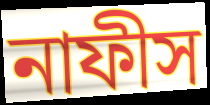
নাফীস